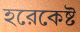
হরেকেষ্ট